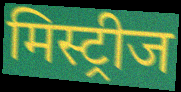
मिस्ट्रीज